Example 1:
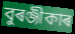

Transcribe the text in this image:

বুৰঞ্জীকাৰ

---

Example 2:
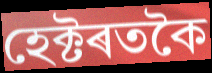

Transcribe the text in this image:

হেক্টৰতকৈ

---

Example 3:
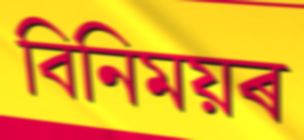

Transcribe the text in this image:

বিনিময়ৰ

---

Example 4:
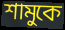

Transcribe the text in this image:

শামুকে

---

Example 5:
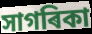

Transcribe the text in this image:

সাগৰিকা